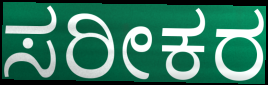
ಸರೀಕರ